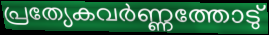
പ്രത്യേകവർണ്ണത്തോടു്